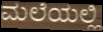
ಮಲೆಯಲ್ಲಿ